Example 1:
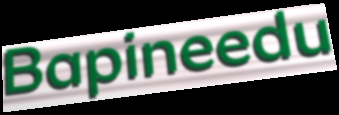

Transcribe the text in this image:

Bapineedu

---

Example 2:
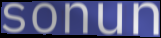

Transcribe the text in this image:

sonun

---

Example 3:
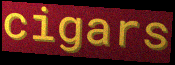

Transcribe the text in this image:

cigars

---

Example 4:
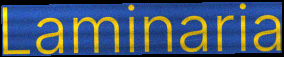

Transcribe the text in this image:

Laminaria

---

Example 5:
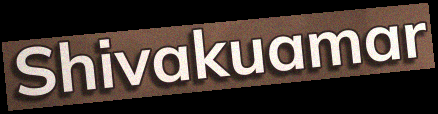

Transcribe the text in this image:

Shivakuamar